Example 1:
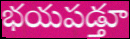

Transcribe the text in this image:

భయపడ్తూ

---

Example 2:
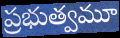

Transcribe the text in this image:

ప్రభుత్వమూ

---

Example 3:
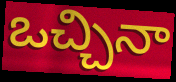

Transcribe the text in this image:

ఒచ్చినా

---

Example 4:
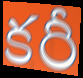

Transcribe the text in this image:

కరీ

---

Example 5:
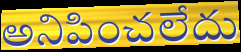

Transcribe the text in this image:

అనిపించలేదు